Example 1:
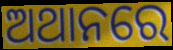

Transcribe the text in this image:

ଅଥାନରେ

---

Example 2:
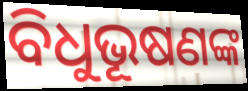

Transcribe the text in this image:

ବିଧୁଭୂଷଣଙ୍କ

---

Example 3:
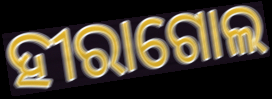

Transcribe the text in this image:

ହୀରାଗୋଲ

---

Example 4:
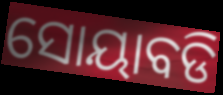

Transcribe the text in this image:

ସୋୟାବଡି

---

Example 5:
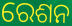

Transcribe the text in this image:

ରେଶନ